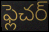
ఫ్లెచర్